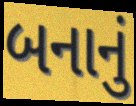
બનાનું